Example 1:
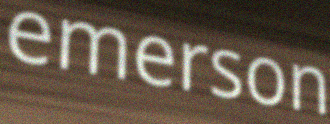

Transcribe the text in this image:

emerson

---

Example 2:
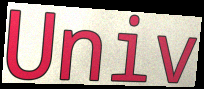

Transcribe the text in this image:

Univ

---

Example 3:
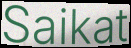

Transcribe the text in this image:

Saikat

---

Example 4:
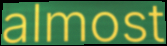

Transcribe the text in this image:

almost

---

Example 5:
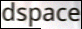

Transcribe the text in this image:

dspace